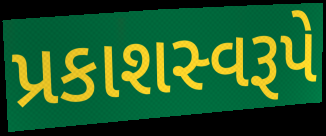
પ્રકાશસ્વરૂપે